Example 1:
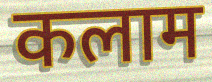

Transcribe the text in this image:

कलाम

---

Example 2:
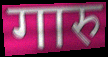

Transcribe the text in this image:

गारु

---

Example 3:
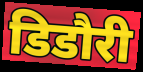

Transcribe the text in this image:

डिडौरी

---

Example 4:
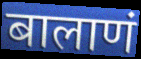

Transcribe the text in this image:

बालाणं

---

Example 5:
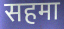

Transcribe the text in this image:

सहमा